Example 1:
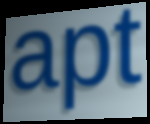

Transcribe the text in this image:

apt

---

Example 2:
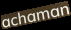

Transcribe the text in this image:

achaman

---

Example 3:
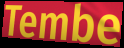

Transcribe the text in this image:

Tembe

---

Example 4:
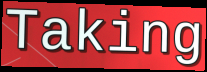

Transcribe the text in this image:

Taking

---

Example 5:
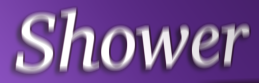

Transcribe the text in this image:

Shower